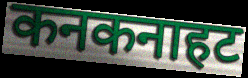
कनकनाहट